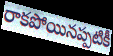
రాకపోయినప్పటికీ